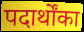
पदार्थोंका